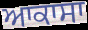
ਆਕਾਸਾ